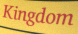
Kingdom